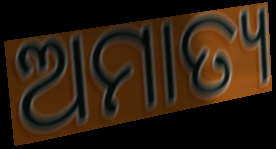
ଅମାତ୍ୟ